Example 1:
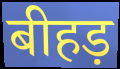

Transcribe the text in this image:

बीहड़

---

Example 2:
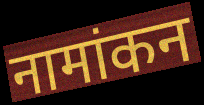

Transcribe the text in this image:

नामांकन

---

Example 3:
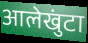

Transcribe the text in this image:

आलेखुंटा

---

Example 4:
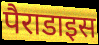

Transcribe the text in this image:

पैराडाइस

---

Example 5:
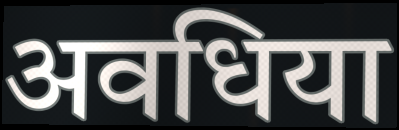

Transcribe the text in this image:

अवधिया